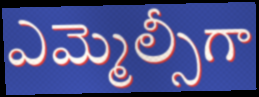
ఎమ్మెల్సీగా